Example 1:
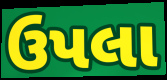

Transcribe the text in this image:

ઉપલા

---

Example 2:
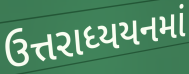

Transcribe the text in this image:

ઉત્તરાધ્યયનમાં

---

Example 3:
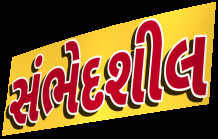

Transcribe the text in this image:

સંભેદશીલ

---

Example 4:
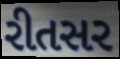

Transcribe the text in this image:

રીતસર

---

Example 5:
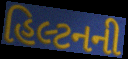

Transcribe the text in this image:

હિલ્ટનની